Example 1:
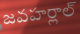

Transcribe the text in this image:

జవహర్లాల్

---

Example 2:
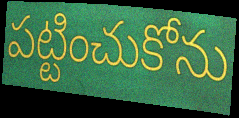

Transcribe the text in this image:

పట్టించుకోను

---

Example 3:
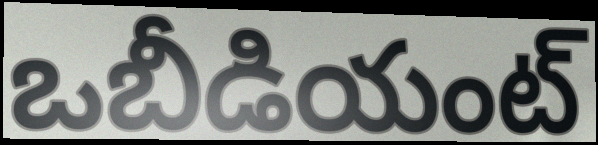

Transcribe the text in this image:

ఒబీడియంట్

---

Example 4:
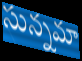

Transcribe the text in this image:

సున్నమా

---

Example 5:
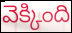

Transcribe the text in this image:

వెక్కింది